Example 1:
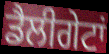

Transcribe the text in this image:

ਡੈਲੀਗੇਟਾਂ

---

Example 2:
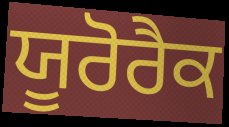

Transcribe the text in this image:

ਯੂਰੋਰੈਕ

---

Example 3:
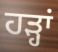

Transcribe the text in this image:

ਹੜ੍ਹਾਂ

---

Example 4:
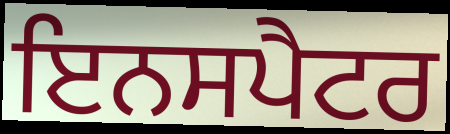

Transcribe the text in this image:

ਇਨਸਪੈਟਰ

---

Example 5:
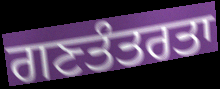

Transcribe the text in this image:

ਗਣਤੰਤਰਤਾ